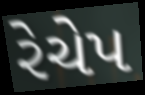
રેચેપ